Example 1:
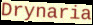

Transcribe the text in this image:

Drynaria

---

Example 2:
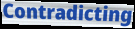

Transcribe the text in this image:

Contradicting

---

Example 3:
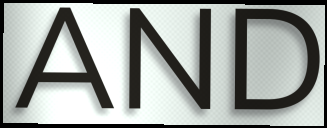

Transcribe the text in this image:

AND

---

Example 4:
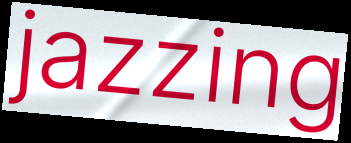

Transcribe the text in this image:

jazzing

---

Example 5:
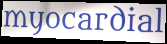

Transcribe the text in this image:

myocardial